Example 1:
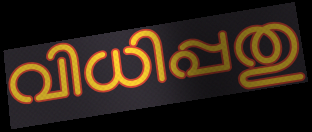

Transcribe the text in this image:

വിധിപ്പതു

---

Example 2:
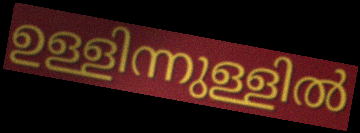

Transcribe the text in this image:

ഉള്ളിന്നുള്ളിൽ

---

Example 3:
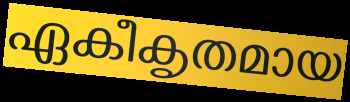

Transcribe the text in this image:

ഏകീകൃതമായ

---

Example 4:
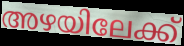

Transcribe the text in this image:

അഴയിലേക്ക്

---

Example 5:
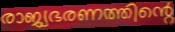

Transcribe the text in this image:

രാജ്യഭരണത്തിന്റെ